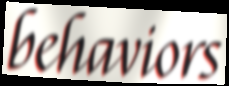
behaviors